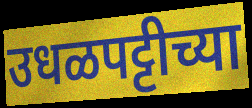
उधळपट्टीच्या